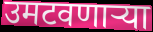
उमटवणार्‍या